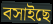
বসাইছে